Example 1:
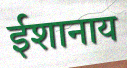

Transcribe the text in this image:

ईशानाय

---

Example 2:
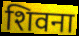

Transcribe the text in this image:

शिवना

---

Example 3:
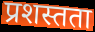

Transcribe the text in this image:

प्रशस्तता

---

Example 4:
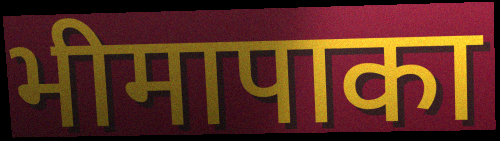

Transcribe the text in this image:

भीमापाका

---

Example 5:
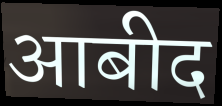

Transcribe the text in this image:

आबीद